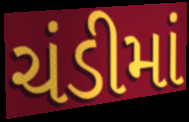
ચંડીમાં